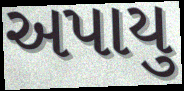
અપાયુ